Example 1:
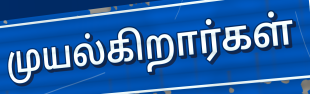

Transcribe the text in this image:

முயல்கிறார்கள்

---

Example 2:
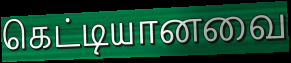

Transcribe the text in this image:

கெட்டியானவை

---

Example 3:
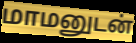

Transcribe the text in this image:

மாமனுடன்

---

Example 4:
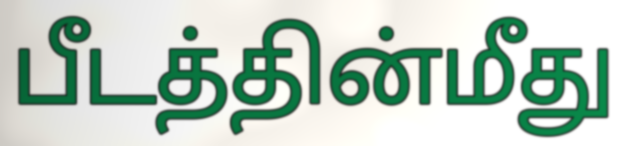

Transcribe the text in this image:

பீடத்தின்மீது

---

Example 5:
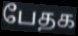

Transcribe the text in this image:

பேதக